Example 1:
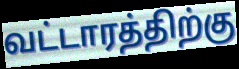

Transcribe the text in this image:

வட்டாரத்திற்கு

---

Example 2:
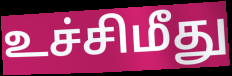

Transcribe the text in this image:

உச்சிமீது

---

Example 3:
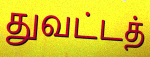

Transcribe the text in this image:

துவட்டத்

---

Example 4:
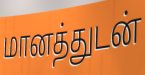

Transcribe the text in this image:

மானத்துடன்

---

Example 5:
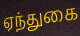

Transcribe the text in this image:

ஏந்துகை